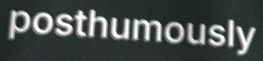
posthumously